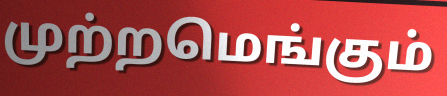
முற்றமெங்கும்